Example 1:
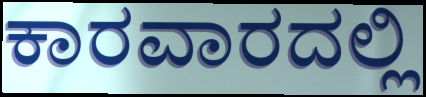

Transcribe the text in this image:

ಕಾರವಾರದಲ್ಲಿ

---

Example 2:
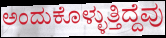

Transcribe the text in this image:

ಅಂದುಕೊಳ್ಳುತ್ತಿದ್ದೆವು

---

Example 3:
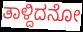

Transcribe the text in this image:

ತಾಳ್ದಿದನೋ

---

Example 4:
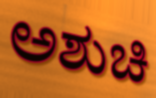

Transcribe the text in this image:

ಅಶುಚಿ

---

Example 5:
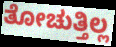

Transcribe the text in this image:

ತೋಚುತ್ತಿಲ್ಲ